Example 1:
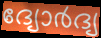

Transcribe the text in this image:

ദ്യോർദ്യ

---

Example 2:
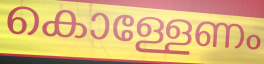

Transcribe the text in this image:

കൊള്ളേണം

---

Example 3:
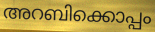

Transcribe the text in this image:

അറബിക്കൊപ്പം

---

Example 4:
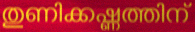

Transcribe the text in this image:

തുണിക്കഷ്ണത്തിന്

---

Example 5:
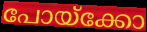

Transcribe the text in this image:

പോയ്ക്കോ